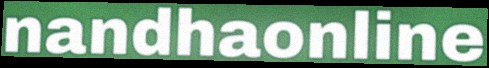
nandhaonline